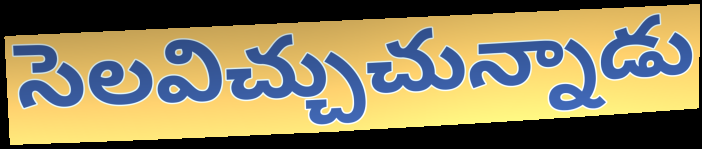
సెలవిచ్చుచున్నాడు